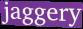
jaggery